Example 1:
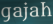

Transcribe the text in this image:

gajah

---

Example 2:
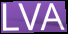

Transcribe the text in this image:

LVA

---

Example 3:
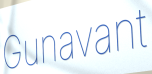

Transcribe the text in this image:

Gunavant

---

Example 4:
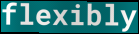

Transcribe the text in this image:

flexibly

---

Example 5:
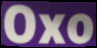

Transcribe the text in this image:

Oxo